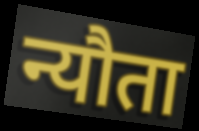
न्यौता